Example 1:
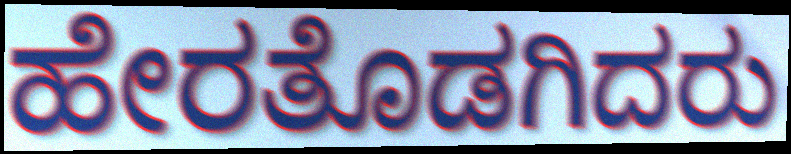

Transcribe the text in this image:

ಹೇರತೊಡಗಿದರು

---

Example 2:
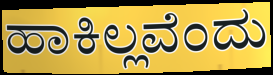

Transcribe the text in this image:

ಹಾಕಿಲ್ಲವೆಂದು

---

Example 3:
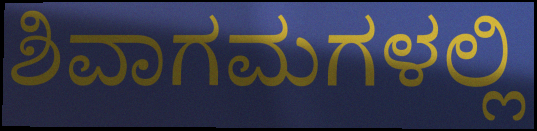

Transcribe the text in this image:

ಶಿವಾಗಮಗಳಲ್ಲಿ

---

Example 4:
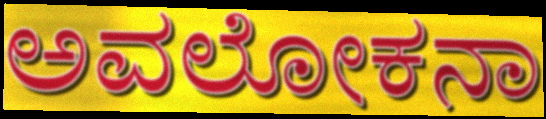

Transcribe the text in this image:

ಅವಲೋಕನಾ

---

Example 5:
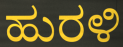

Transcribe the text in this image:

ಹುರಳಿ